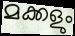
മക്കളും